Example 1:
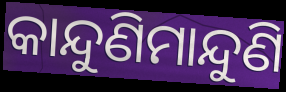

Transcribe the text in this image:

କାନ୍ଦୁଣିମାନ୍ଦୁଣି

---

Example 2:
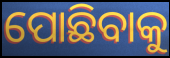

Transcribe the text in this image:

ପୋଛିବାକୁ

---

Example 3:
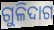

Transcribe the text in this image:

ଗୁଳିଦାଗ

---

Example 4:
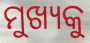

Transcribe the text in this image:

ମୁଖ୍ୟକୁ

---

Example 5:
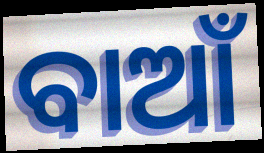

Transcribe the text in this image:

ବାଆଁ